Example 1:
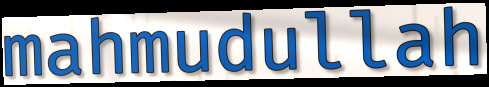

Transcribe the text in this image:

mahmudullah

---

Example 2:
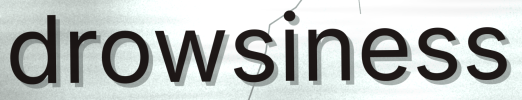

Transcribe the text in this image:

drowsiness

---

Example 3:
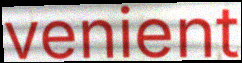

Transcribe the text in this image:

venient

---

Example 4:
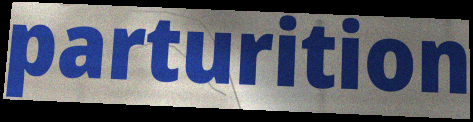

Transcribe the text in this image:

parturition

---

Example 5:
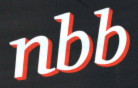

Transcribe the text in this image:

nbb